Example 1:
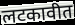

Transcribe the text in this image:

लटकावीत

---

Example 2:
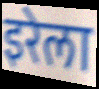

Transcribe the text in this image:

इरेला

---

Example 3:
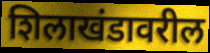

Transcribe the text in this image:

शिलाखंडावरील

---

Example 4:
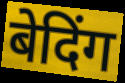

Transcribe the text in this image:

बेदिंग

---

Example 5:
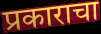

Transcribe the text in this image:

प्रकाराचा